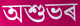
অশুভৰ